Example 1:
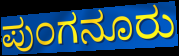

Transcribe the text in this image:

ಪುಂಗನೂರು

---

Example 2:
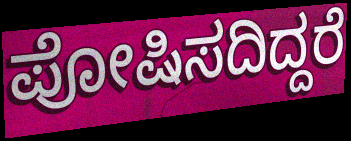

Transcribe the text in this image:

ಪೋಷಿಸದಿದ್ದರೆ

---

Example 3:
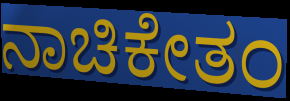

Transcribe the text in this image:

ನಾಚಿಕೇತಂ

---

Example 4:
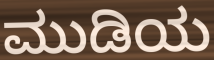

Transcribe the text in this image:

ಮುಡಿಯ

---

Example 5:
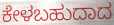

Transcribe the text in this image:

ಕೇಳಬಹುದಾದ